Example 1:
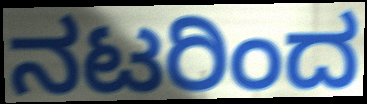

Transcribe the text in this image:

ನಟರಿಂದ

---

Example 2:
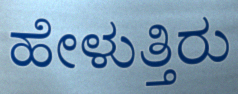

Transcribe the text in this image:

ಹೇಳುತ್ತಿರು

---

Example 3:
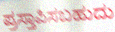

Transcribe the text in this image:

ಪ್ರಸ್ತಾಪಿಸಬಹುದು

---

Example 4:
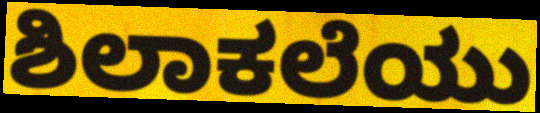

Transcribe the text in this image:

ಶಿಲಾಕಲೆಯು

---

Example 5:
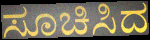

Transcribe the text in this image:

ಸೂಚಿಸಿದ